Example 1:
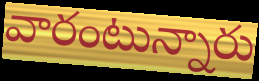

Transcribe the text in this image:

వారంటున్నారు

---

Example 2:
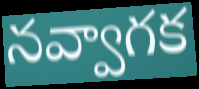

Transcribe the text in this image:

నవ్వాగక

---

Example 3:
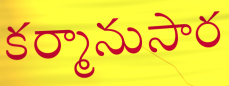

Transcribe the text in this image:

కర్మానుసార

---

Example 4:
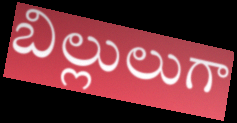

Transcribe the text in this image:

బిల్లులుగా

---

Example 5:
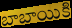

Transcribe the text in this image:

బాబాయికి